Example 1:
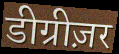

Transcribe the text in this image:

डीग्रीज़र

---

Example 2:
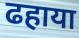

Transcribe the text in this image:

ढहाया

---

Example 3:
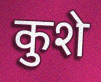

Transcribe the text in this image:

कुशे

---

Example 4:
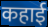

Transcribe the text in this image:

कहाई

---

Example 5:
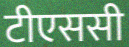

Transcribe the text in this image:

टीएससी